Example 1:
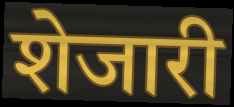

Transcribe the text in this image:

शेजारी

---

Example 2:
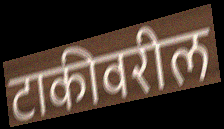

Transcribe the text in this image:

टाकीवरील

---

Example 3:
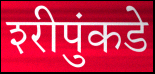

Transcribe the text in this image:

श्रीपुंकडे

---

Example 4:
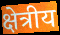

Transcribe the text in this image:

क्षेत्रीय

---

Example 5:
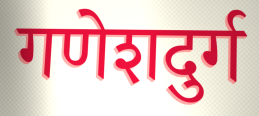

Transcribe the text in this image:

गणेशदुर्ग